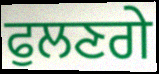
ਫੁਲਣਗੇ